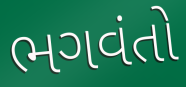
ભગવંતો